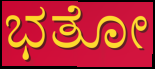
ಭತೋ